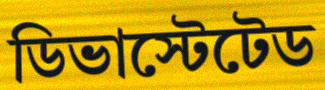
ডিভাস্টেটেড